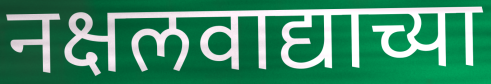
नक्षलवाद्याच्या